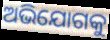
ଅଭିଯୋଗକୁ